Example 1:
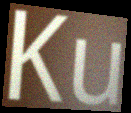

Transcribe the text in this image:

Ku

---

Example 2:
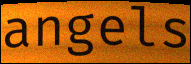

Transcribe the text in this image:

angels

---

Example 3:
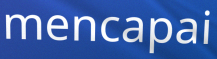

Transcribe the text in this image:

mencapai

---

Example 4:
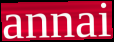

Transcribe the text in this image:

annai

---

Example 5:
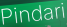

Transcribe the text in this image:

Pindari